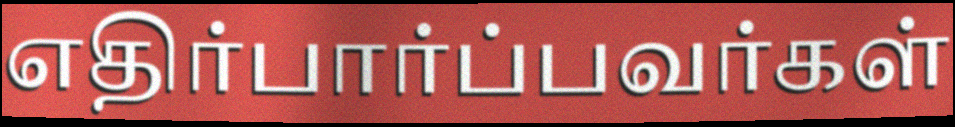
எதிர்பார்ப்பவர்கள்